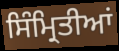
ਸਿੰਮ੍ਰਿਤੀਆਂ